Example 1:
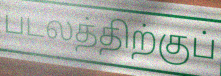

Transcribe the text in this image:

படலத்திற்குப்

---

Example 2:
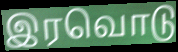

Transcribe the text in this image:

இரவொடு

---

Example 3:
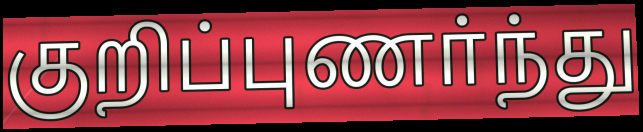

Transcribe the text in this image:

குறிப்புணர்ந்து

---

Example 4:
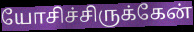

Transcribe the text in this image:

யோசிச்சிருக்கேன்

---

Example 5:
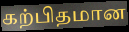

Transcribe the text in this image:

கற்பிதமான